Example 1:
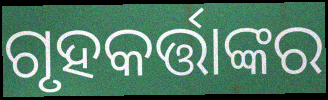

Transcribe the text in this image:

ଗୃହକର୍ତ୍ତାଙ୍କର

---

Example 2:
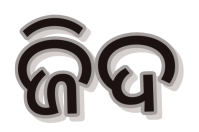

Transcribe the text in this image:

ଜିଦ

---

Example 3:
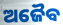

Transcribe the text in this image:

ଅଜୈବ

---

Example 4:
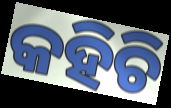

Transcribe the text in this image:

କହିଚି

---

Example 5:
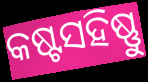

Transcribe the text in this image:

କଷ୍ଟସହିଷ୍ଣୁ